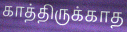
காத்திருக்காத